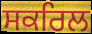
ਸਕਰਿਲ